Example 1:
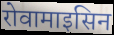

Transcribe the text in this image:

रोवामाइसिन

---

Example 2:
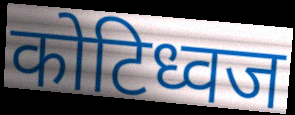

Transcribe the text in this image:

कोटिध्वज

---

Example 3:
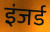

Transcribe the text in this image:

इंजर्ड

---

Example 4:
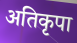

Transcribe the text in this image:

अतिकृपा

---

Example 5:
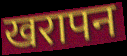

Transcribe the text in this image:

खरापन